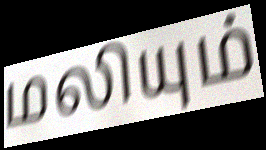
மலியும்